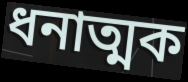
ধনাত্মক